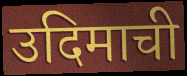
उदिमाची